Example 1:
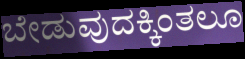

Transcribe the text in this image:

ಬೇಡುವುದಕ್ಕಿಂತಲೂ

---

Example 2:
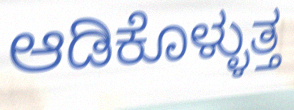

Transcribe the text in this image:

ಆಡಿಕೊಳ್ಳುತ್ತ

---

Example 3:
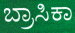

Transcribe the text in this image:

ಬ್ರಾಸಿಕಾ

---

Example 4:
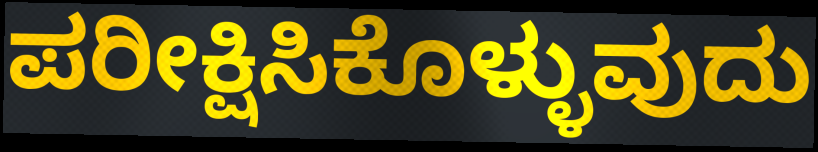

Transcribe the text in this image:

ಪರೀಕ್ಷಿಸಿಕೊಳ್ಳುವುದು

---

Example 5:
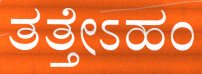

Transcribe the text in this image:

ತತ್ತೇಽಹಂ